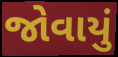
જોવાયું